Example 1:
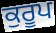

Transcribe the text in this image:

ਕੁਰੂਪ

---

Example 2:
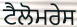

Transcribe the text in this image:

ਟੈਲੋਮਰੇਸ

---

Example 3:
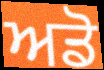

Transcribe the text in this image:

ਅਡੋ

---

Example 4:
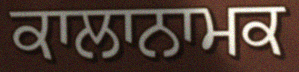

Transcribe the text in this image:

ਕਾਲਾਨਾਮਕ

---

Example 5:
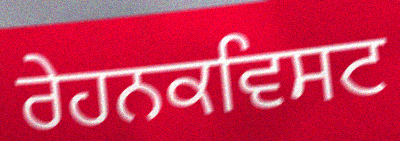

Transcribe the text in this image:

ਰੇਹਨਕਵਿਸਟ